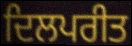
ਦਿਲਪਰੀਤ